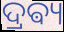
ଦ୍ରଵ୍ୟ